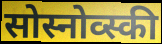
सोस्नोव्स्की